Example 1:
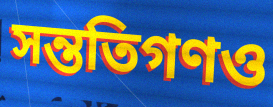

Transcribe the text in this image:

সন্ততিগণও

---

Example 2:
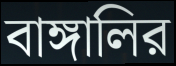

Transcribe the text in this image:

বাঙ্গালির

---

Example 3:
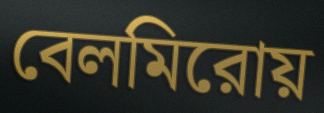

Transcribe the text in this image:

বেলমিরোয়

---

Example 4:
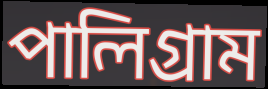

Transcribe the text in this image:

পালিগ্রাম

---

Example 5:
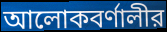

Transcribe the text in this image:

আলোকবর্ণালীর